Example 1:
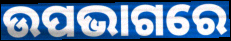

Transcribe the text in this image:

ଉପଭାଗରେ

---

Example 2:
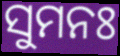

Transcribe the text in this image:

ସୁମନଃ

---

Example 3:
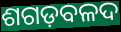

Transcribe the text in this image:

ଶଗଡ଼ବଳଦ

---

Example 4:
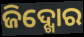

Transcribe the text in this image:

ଜିଦ୍ଖୋର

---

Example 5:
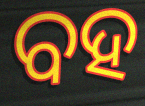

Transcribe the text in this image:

ବହ